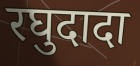
रघुदादा